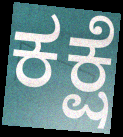
ಕಕ್ಷೆ